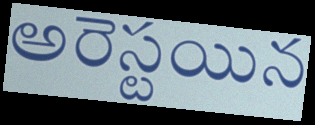
అరెస్టయిన